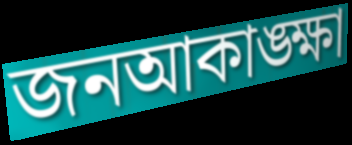
জনআকাঙ্ক্ষা